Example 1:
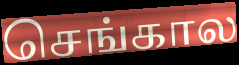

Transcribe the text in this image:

செங்கால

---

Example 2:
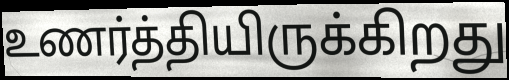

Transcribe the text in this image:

உணர்த்தியிருக்கிறது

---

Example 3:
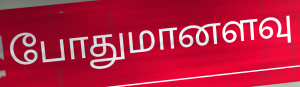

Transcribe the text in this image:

போதுமானளவு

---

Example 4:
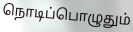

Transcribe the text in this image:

நொடிப்பொழுதும்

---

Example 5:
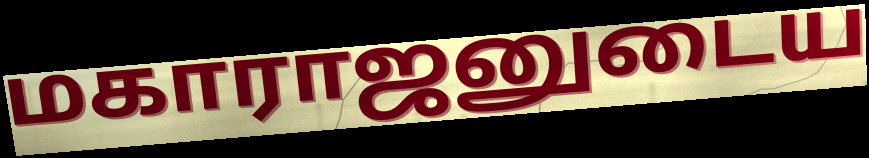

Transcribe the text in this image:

மகாராஜனுடைய